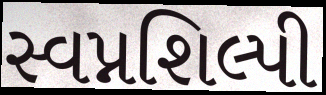
સ્વપ્નશિલ્પી